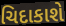
ચિદાકાશે